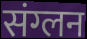
संग्लन